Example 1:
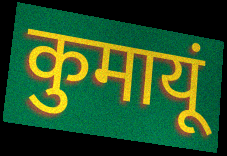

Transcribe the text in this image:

कुमायूं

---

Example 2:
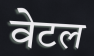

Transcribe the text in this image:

वेटल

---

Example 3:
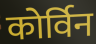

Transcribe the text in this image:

कोर्विन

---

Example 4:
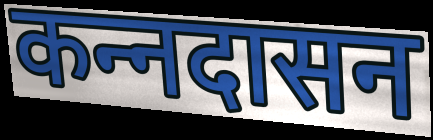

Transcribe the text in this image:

कन्नदासन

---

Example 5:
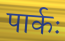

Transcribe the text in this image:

पार्कः